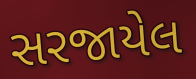
સરજાયેલ